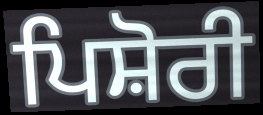
ਪਿਸ਼ੋਰੀ